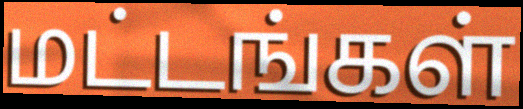
மட்டங்கள்